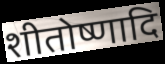
शीतोष्णादि